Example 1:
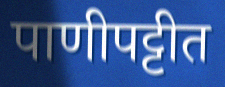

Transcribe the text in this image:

पाणीपट्टीत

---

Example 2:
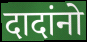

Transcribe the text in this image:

दादांनो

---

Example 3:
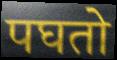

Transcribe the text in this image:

पघतो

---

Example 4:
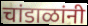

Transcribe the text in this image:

चांडाळांनी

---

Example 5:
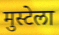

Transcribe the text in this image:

मुस्टेला